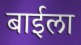
बाईला